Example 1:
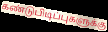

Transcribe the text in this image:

கண்டுபிடிப்புகளுக்கு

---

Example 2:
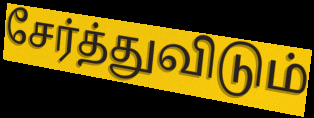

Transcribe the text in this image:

சேர்த்துவிடும்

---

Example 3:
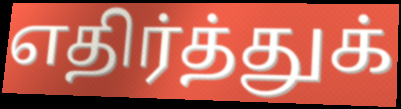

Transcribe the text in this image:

எதிர்த்துக்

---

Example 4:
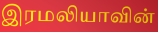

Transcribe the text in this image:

இரமலியாவின்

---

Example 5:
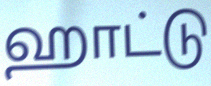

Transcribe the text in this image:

ஹாட்டு